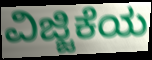
ವಿಜ್ಜಿಕೆಯ